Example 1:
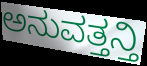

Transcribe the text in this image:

ಅನುವತ್ತನ್ತಿ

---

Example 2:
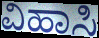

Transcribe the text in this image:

ವಿಹಾಸಿ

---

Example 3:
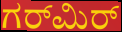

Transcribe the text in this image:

ಗರ್‌ಮಿರ್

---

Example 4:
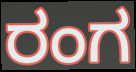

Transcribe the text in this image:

ರಂಗ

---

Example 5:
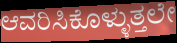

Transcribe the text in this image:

ಆವರಿಸಿಕೊಳ್ಳುತ್ತಲೇ